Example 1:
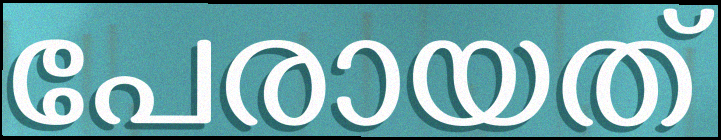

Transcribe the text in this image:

പേരായത്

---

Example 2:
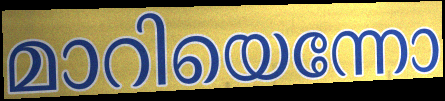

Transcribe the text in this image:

മാറിയെന്നോ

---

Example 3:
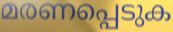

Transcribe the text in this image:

മരണപ്പെടുക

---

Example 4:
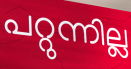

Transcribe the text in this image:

പറ്റുന്നില്ല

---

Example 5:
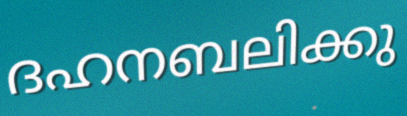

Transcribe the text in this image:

ദഹനബലിക്കു